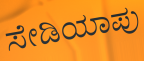
ಸೇಡಿಯಾಪು